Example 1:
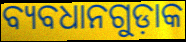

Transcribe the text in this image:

ବ୍ୟବଧାନଗୁଡ଼ାକ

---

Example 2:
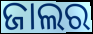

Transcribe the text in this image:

ଜାଲର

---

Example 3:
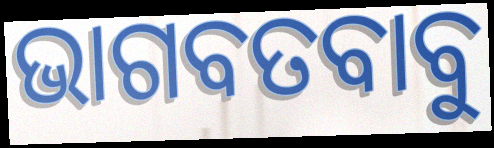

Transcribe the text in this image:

ଭାଗବତବାବୁ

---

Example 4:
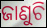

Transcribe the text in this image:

ଜାଣୁଚି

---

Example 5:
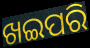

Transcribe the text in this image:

ଖଇପରି